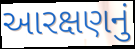
આરક્ષણનું